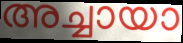
അച്ചായാ